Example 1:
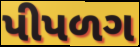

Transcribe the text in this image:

પીપળગ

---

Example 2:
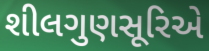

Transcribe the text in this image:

શીલગુણસૂરિએ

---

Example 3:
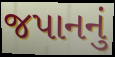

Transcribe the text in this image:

જપાનનું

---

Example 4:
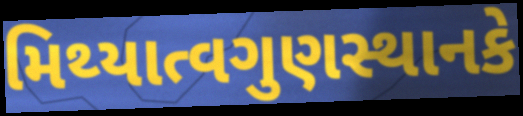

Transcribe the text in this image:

મિથ્યાત્વગુણસ્થાનકે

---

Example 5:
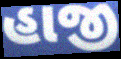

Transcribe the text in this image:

હાજી